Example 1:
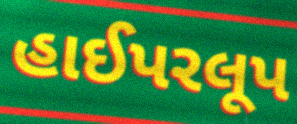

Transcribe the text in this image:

હાઈપરલૂપ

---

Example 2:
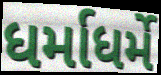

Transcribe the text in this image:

ધર્માધર્મે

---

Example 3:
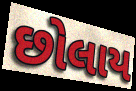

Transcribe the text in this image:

છોલાય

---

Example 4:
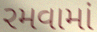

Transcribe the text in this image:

રમવામાં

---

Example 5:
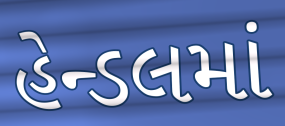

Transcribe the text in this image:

હેન્ડલમાં